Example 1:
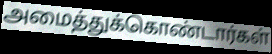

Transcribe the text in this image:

அமைத்துக்கொண்டார்கள்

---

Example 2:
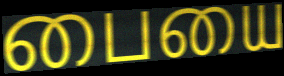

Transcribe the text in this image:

பையை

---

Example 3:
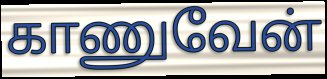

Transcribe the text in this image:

காணுவேன்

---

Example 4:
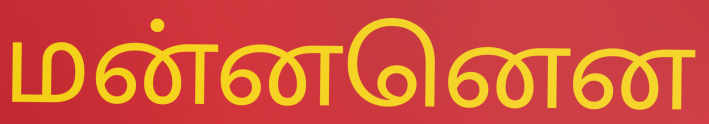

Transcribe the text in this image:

மன்னனென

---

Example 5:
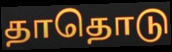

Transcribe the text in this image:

தாதொடு